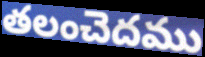
తలంచెదము